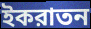
ইকরাতন